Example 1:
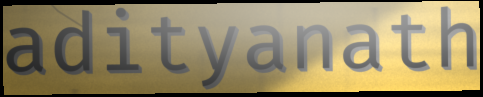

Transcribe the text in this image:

adityanath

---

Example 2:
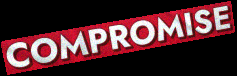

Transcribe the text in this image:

COMPROMISE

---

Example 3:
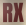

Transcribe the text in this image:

RX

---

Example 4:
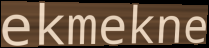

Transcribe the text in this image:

ekmekne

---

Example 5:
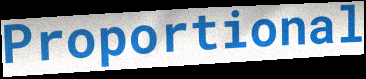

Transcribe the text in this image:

Proportional